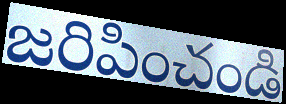
జరిపించండి